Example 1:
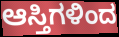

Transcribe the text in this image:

ಆಸ್ತಿಗಳಿಂದ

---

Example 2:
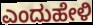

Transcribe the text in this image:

ಎಂದುಹೇಳಿ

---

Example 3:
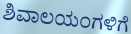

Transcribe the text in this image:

ಶಿವಾಲಯಂಗಳಿಗೆ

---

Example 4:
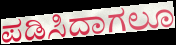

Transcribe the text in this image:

ಪಡಿಸಿದಾಗಲೂ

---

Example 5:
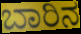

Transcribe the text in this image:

ಬಾರಿನ